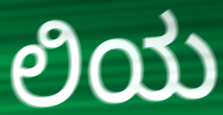
ಲಿಯ